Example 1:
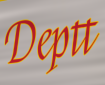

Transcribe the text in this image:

Deptt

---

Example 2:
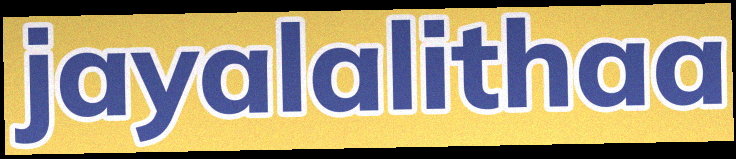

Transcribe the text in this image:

jayalalithaa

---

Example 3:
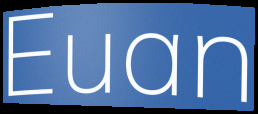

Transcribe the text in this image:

Euan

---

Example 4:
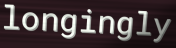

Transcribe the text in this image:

longingly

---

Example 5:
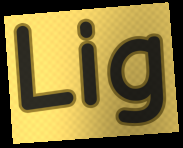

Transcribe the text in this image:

Lig